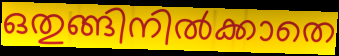
ഒതുങ്ങിനിൽക്കാതെ